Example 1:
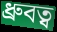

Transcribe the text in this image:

ধ্রুবত্ব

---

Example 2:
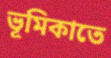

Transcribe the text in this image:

ভূমিকাতে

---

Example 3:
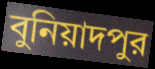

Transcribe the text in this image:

বুনিয়াদপুর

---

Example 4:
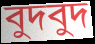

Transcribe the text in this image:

বুদবুদ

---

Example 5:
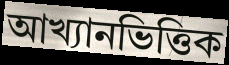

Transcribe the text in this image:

আখ্যানভিত্তিক